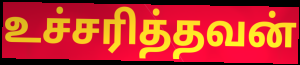
உச்சரித்தவன்